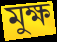
মুক্ষ